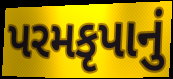
પરમકૃપાનું